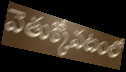
వెతుక్కోవటంలో